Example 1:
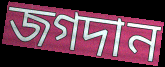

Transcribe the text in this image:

জগদান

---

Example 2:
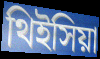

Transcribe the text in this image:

থিইসিয়া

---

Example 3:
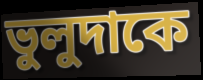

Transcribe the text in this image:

ভুলুদাকে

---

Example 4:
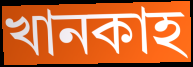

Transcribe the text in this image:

খানকাহ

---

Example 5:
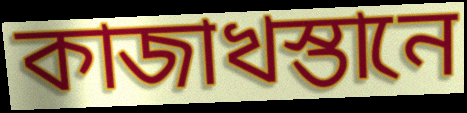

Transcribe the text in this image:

কাজাখস্তানে